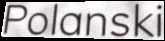
Polanski